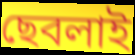
ছেবলাই